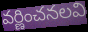
వర్ణించనలవి